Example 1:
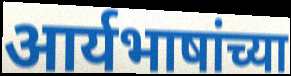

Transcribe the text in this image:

आर्यभाषांच्या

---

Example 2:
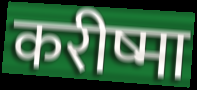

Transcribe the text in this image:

करीष्मा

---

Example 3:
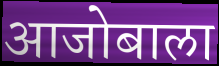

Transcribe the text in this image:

आजोबाला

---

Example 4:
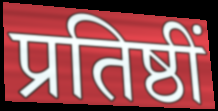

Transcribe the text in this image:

प्रतिष्ठीं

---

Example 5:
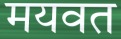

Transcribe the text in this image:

मयवत